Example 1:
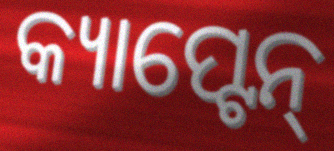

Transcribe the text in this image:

କ୍ୟାପ୍ଟେନ୍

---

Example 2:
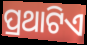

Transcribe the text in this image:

ପ୍ରଥାଟିଏ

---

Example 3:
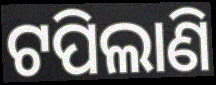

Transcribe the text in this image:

ଟପିଲାଣି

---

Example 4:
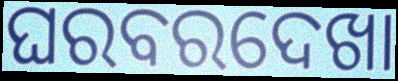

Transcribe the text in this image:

ଘରବରଦେଖା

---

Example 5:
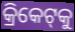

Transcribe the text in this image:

କ୍ରିକେଟ୍‌କୁ